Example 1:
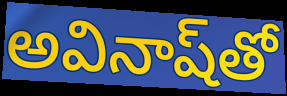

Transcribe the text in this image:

అవినాష్‌తో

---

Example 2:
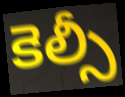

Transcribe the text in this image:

కెల్సీ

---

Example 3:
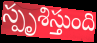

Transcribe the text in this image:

స్పృశిస్తుంది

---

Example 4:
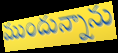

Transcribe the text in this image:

ముందున్నాను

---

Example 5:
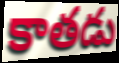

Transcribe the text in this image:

కాతడు